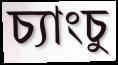
চ্যাংচু